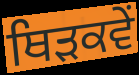
ਥਿੜਕਵੇਂ